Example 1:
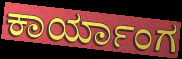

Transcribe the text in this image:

ಕಾರ್ಯಾಂಗ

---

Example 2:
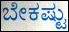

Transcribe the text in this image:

ಬೇಕಷ್ಟು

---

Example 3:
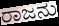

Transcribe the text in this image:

ರಾಜನು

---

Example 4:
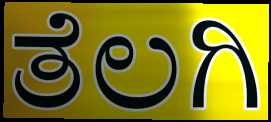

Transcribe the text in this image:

ತೆಲಗಿ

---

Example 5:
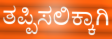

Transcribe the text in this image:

ತಪ್ಪಿಸಲಿಕ್ಕಾಗಿ